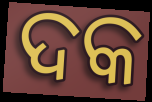
ଦକ